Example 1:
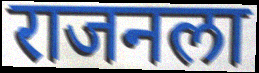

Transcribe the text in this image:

राजनला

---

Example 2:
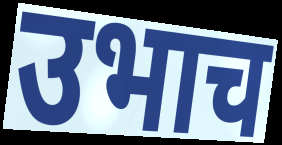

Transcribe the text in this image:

उभाच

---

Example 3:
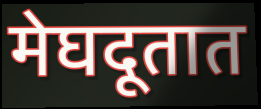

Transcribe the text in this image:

मेघदूतात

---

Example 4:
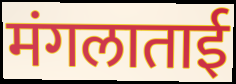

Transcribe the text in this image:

मंगलाताई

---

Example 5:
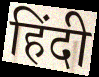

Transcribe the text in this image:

हिंदी